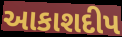
આકાશદીપ